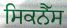
ਸਿਕਨੈੱਸ